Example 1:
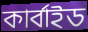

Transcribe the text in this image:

কার্বাইড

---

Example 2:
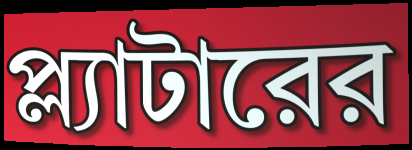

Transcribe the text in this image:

প্ল্যাটারের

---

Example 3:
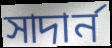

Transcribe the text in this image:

সাদার্ন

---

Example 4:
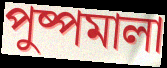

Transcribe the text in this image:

পুষ্পমালা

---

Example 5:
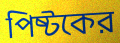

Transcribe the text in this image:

পিষ্টকের